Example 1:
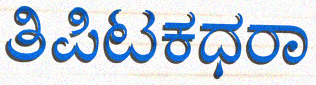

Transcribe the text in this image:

ತಿಪಿಟಕಧರಾ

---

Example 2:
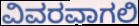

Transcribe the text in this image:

ವಿವರವಾಗಲಿ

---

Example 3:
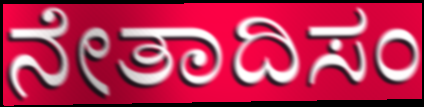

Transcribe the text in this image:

ನೇತಾದಿಸಂ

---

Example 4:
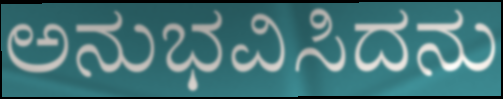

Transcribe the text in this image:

ಅನುಭವಿಸಿದನು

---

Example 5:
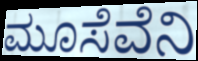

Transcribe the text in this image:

ಮೂಸೆವೆನಿ